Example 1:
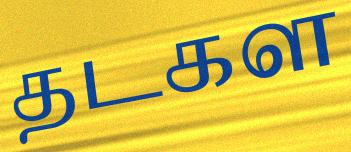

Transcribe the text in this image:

தடகள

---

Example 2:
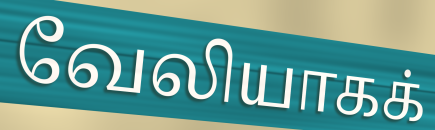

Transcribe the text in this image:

வேலியாகக்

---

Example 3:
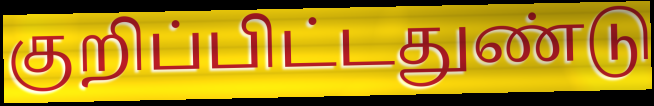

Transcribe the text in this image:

குறிப்பிட்டதுண்டு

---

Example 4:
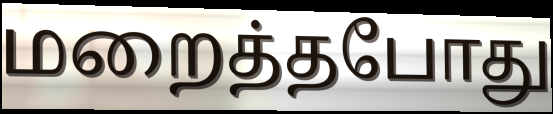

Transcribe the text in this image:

மறைத்தபோது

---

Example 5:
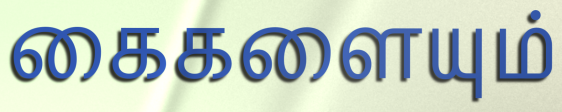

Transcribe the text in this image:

கைகளையும்